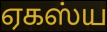
ஏகஸ்ய